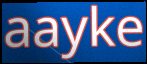
aayke